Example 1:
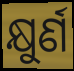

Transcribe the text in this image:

କ୍ଷୁର୍ଣ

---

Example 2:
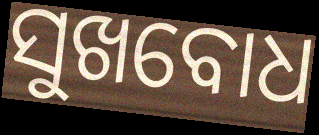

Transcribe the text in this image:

ସୁଖବୋଧ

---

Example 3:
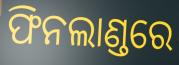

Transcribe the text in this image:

ଫିନଲାଣ୍ଡରେ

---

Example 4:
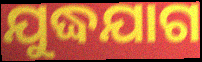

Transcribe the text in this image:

ଯୁଦ୍ଧଯାଗ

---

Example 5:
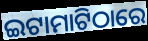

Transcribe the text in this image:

ଇଟାମାଟିଠାରେ